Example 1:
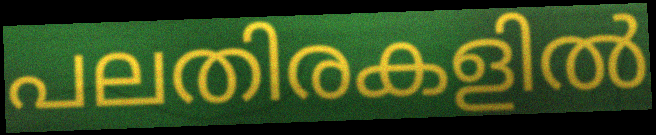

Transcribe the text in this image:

പലതിരകളിൽ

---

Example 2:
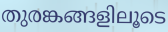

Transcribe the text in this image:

തുരങ്കങ്ങളിലൂടെ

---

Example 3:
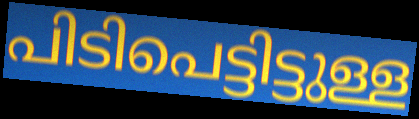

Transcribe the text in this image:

പിടിപെട്ടിട്ടുള്ള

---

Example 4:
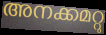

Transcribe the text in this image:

അനക്കമറ്റു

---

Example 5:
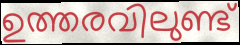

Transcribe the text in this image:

ഉത്തരവിലുണ്ട്